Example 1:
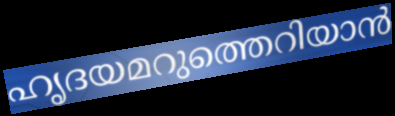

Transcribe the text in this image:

ഹൃദയമറുത്തെറിയാൻ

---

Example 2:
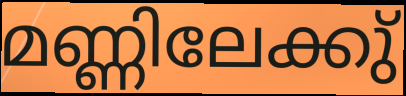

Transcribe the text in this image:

മണ്ണിലേക്കു്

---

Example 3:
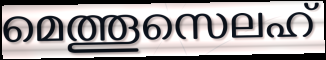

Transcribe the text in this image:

മെത്തൂസെലഹ്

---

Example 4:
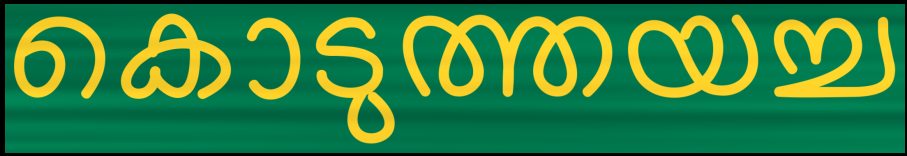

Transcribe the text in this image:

കൊടുത്തയച്ച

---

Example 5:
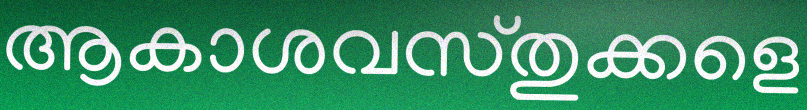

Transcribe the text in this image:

ആകാശവസ്തുക്കളെ